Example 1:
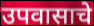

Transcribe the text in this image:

उपवासाचे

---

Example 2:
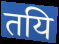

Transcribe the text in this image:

तयि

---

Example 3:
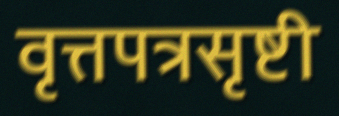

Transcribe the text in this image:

वृत्तपत्रसृष्टी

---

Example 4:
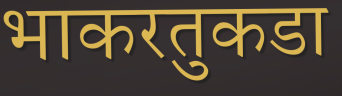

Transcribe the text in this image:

भाकरतुकडा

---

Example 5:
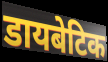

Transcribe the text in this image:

डायबेटिक